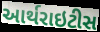
આર્થરાઇટીસ